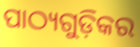
ପାଠ୍ୟଗୁଡ଼ିକର